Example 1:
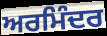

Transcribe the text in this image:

ਅਰਮਿੰਦਰ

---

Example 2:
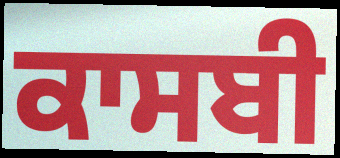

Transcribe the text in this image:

ਕਾਸਬੀ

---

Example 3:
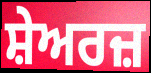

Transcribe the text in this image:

ਸ਼ੇਅਰਜ਼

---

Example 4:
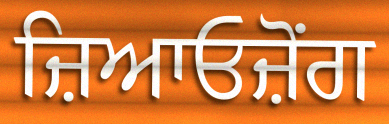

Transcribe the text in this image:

ਜ਼ਿਆਓਜ਼ੋਂਗ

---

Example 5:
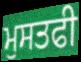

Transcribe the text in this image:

ਮੁਸਤਫੀ